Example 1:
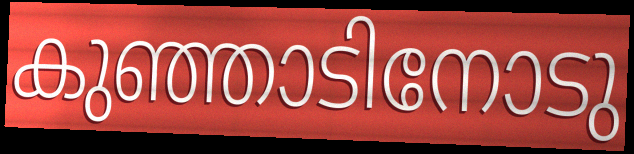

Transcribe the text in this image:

കുഞ്ഞാടിനോടു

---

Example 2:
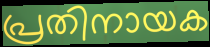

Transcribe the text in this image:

പ്രതിനായക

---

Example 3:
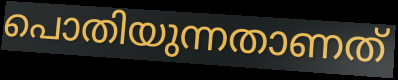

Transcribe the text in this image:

പൊതിയുന്നതാണത്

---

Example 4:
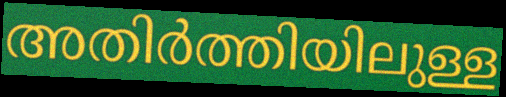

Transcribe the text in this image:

അതിർത്തിയിലുള്ള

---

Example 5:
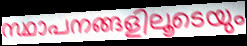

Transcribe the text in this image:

സ്ഥാപനങ്ങളിലൂടെയും